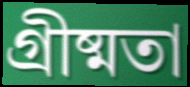
গ্ৰীষ্মতা